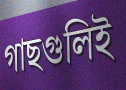
গাছগুলিই